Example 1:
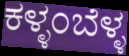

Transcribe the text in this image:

ಕಳ್ಳಂಬೆಳ್ಳ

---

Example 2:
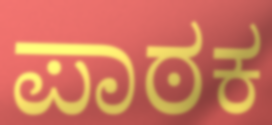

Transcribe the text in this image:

ಪಾಠಕ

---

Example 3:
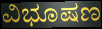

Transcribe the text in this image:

ವಿಭೂಷಣ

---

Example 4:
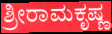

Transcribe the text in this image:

ಶ್ರೀರಾಮಕೃಷ್ಣ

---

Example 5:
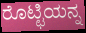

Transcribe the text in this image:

ರೊಟ್ಟಿಯನ್ನ